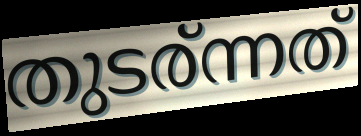
തുടര്ന്നത്